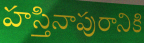
హస్తినాపురానికి